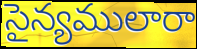
సైన్యములారా